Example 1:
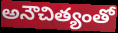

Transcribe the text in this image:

అనౌచిత్యంతో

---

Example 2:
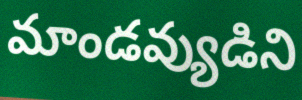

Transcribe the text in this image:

మాండవ్యుడిని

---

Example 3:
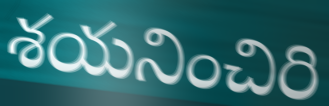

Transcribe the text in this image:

శయనించిరి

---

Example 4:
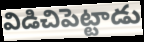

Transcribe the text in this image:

విడిచిపెట్టాడు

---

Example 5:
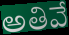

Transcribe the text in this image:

అతివే